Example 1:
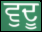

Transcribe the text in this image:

ਵੁਦੂ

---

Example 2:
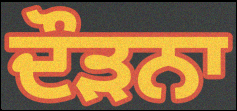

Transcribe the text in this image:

ਦੌੜਨਾ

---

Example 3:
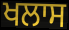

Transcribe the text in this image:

ਖਲਾਸ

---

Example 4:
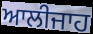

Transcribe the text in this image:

ਆਲੀਜਾਹ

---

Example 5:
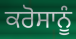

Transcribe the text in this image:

ਕਰੋਸਾਨੂੰ